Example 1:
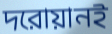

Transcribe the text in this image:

দরোয়ানই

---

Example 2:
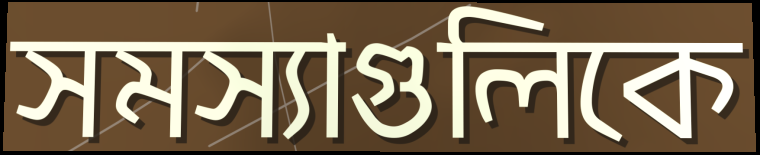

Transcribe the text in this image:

সমস্যাগুলিকে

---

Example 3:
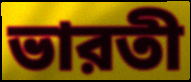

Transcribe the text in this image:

ভারতী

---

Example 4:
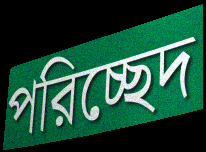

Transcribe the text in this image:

পরিচ্ছেদ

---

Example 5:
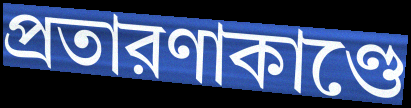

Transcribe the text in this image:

প্রতারণাকাণ্ডে